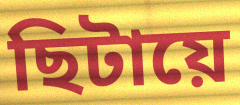
ছিটায়ে